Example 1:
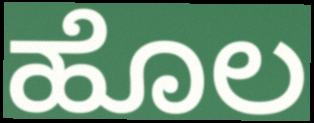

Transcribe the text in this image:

ಹೊಲ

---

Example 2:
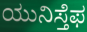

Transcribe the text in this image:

ಯುನಿಸ್ತೆಫ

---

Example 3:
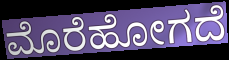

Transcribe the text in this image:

ಮೊರೆಹೋಗದೆ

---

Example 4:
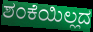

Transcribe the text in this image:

ಶಂಕೆಯಿಲ್ಲದ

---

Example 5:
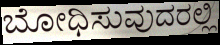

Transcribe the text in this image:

ಬೋಧಿಸುವುದರಲ್ಲಿ